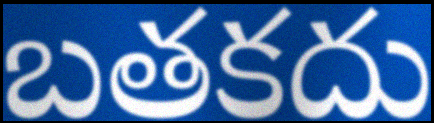
బతకదు